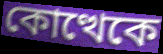
কোত্থেকে